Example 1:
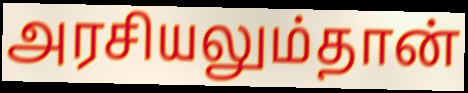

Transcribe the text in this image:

அரசியலும்தான்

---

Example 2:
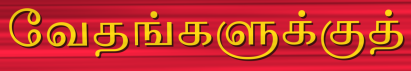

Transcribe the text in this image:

வேதங்களுக்குத்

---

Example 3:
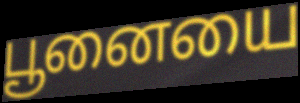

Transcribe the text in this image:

பூனையை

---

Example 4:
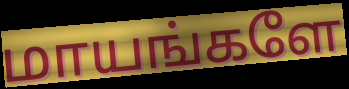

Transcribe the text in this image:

மாயங்களே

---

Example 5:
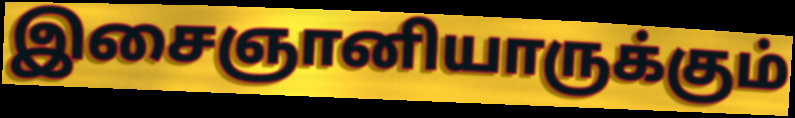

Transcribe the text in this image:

இசைஞானியாருக்கும்